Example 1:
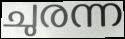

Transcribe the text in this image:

ചുരന്ന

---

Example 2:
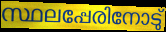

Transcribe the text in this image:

സ്ഥലപ്പേരിനോടു്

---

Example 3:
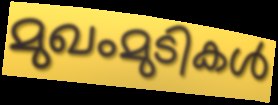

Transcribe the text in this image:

മുഖംമുടികൾ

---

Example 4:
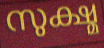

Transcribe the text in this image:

സുക്ഷ്മ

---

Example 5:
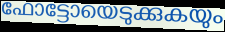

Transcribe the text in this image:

ഫോട്ടോയെടുക്കുകയും